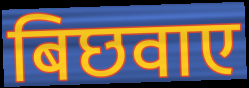
बिछवाए